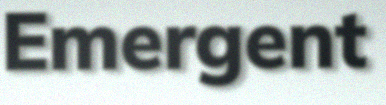
Emergent